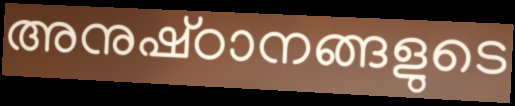
അനുഷ്‌ഠാനങ്ങളുടെ